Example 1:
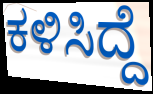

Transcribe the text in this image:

ಕಳಿಸಿದ್ದೆ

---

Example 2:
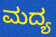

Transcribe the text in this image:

ಮದ್ಯ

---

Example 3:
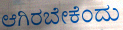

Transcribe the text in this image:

ಆಗಿರಬೇಕೆಂದು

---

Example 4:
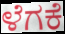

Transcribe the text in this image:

ಳೆಗಕೆ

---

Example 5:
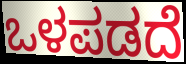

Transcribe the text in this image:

ಒಳಪಡದೆ